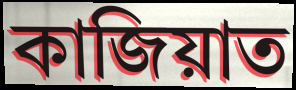
কাজিয়াত